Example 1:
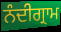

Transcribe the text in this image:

ਨੰਦੀਗ੍ਰਾਮ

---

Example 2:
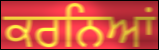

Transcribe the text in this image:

ਕਰਨਿਆਂ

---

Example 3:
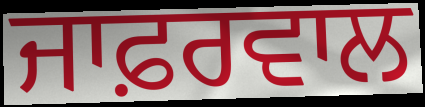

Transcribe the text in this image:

ਜਾਫ਼ਰਵਾਲ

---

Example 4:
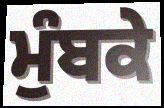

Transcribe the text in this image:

ਮੁੰਬਕੇ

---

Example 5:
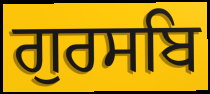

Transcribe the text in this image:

ਗੁਰਸਬਿ